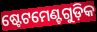
ଷ୍ଟେଟମେଣ୍ଟଗୁଡ଼ିକ